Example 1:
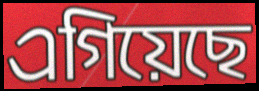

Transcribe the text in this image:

এগিয়েছে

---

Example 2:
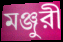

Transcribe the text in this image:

মঞ্জুরী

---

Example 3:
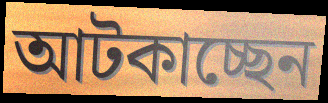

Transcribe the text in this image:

আটকাচ্ছেন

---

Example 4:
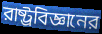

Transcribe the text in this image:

রাষ্ট্রবিজ্ঞানের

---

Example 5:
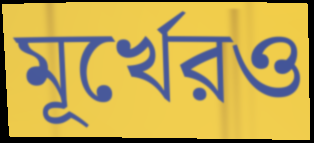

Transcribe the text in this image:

মূর্খেরও